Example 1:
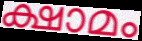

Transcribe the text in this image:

ക്ഷാമം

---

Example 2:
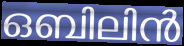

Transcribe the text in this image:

ഒബിലിൻ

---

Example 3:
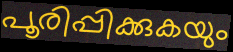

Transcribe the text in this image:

പൂരിപ്പിക്കുകയും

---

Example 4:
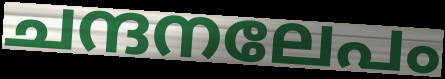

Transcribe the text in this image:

ചന്ദനലേപം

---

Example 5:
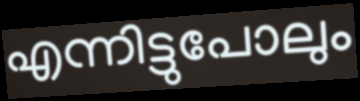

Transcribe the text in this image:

എന്നിട്ടുപോലും